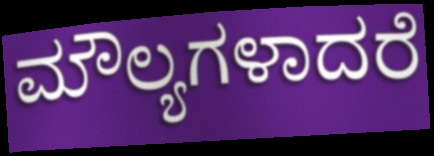
ಮೌಲ್ಯಗಳಾದರೆ